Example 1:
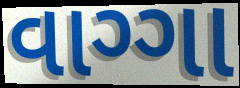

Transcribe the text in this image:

વાગ્ગા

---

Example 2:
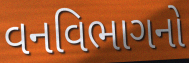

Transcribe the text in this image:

વનવિભાગનો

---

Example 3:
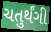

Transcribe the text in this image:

ચતુર્થંગી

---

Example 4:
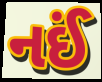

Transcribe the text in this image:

નઈં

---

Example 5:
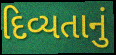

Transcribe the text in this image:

દિવ્યતાનું